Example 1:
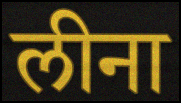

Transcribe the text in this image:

लीना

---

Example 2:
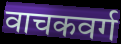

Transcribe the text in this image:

वाचकवर्ग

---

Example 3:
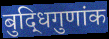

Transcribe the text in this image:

बुद्धिगुणांक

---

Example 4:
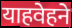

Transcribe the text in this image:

याहवेहने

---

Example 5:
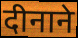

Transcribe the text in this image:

दीनाने